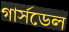
গার্সডেল